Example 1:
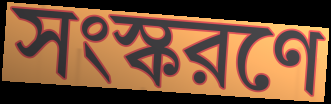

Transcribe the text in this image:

সংস্করণে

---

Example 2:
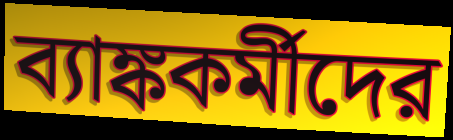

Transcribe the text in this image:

ব্যাঙ্ককর্মীদের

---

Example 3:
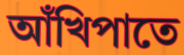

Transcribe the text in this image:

আঁখিপাতে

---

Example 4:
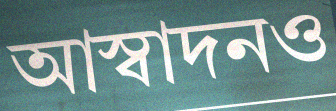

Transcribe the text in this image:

আস্বাদনও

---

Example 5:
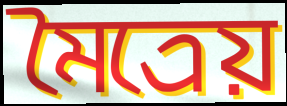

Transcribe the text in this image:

মৈত্রেয়